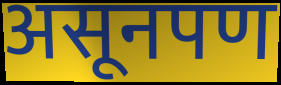
असूनपण